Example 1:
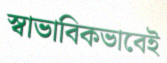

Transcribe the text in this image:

স্বাভাবিকভাবেই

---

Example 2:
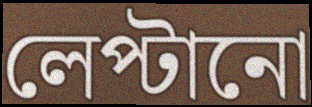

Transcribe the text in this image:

লেপ্টানো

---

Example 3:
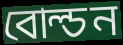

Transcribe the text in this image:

বোল্ডন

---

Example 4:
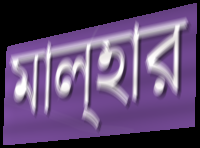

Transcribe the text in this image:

মাল্হার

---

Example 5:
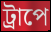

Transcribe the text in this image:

ট্রাপে